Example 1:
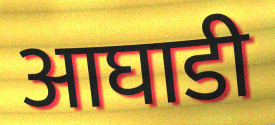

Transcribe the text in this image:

आघाडी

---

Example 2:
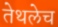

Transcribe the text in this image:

तेथलेच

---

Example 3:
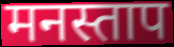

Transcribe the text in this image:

मनस्ताप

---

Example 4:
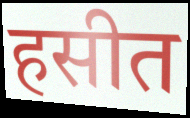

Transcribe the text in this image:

हसीत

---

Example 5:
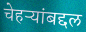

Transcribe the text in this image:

चेहऱ्यांबद्दल